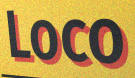
Loco